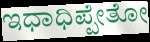
ಇಧಾಧಿಪ್ಪೇತೋ